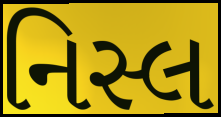
નિસ્લ